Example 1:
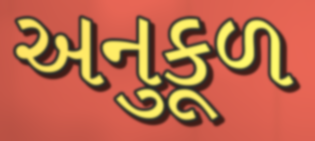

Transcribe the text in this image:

અનુકૂળ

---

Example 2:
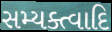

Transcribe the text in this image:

સમ્યક્ત્વાદિ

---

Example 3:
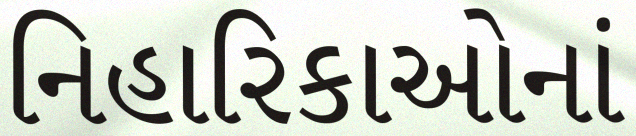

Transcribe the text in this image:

નિહારિકાઓનાં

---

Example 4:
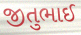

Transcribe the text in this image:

જીતુભાઈ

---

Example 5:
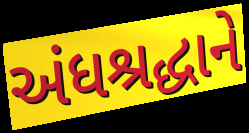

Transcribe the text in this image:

અંધશ્રદ્ધાને